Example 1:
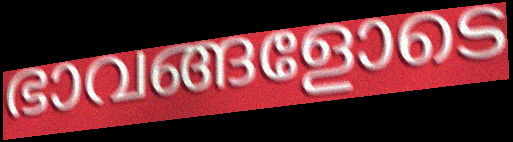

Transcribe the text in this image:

ഭാവങ്ങളോടെ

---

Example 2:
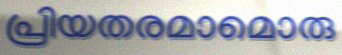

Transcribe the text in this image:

പ്രിയതരമാമൊരു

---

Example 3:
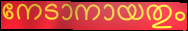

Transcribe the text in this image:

നേടാനായതും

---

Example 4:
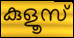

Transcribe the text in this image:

കുളൂസ്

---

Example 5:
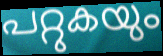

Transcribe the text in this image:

പറ്റുകയും